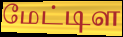
மேட்டிள